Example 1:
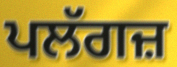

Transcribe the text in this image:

ਪਲੱਗਜ਼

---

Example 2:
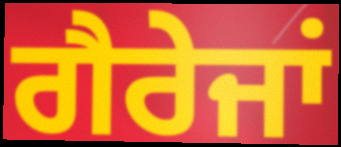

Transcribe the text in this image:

ਗੈਰੇਜਾਂ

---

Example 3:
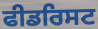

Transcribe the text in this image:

ਫੀਡਰਿਸਟ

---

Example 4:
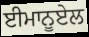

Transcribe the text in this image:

ਈਮਾਨੂਏਲ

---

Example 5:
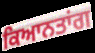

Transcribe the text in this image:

ਕਿਆਨਤਾਂਗ